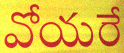
వోయరే